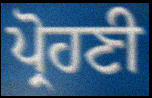
ਪ੍ਰੋਹਣੀ